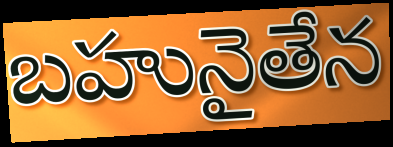
బహునైతేన